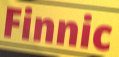
Finnic